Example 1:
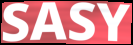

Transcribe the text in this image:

SASY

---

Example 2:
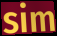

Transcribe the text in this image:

sim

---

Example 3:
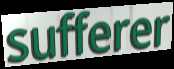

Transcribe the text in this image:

sufferer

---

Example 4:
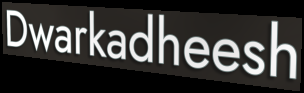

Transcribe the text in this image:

Dwarkadheesh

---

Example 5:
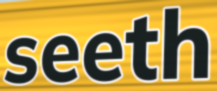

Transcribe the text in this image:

seeth